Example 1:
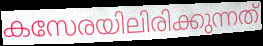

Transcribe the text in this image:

കസേരയിലിരിക്കുന്നത്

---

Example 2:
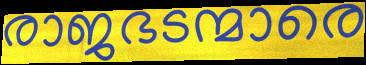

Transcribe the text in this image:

രാജഭടന്മാരെ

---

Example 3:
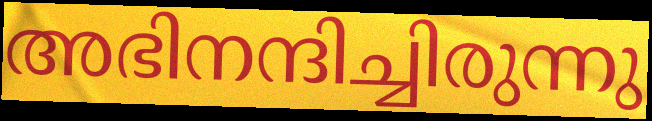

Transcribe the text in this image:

അഭിനന്ദിച്ചിരുന്നു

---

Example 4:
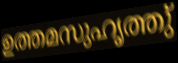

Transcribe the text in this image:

ഉത്തമസുഹൃത്തു്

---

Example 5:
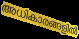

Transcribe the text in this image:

അധികാരങ്ങളിൽ